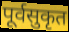
पूर्वसुकृत